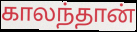
காலந்தான்